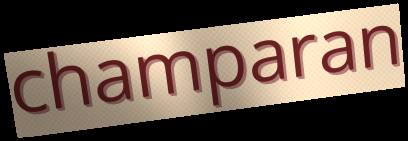
champaran